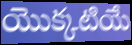
యొక్కటియే